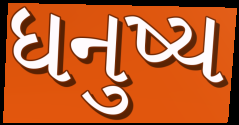
ધનુષ્ય